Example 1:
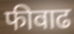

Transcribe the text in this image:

फीवाढ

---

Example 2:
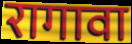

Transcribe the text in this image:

रागावा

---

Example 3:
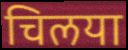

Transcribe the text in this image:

चिलया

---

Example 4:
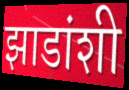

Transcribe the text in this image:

झाडांशी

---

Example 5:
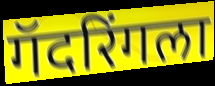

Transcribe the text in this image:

गॅदरिंगला